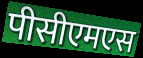
पीसीएमएस